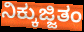
ನಿಕ್ಕುಜ್ಜಿತಂ